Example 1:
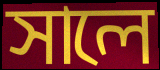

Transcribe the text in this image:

সালে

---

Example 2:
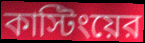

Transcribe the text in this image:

কাস্টিংয়ের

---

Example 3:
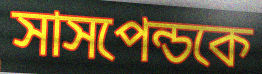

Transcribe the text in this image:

সাসপেন্ডকে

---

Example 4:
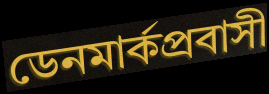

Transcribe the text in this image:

ডেনমার্কপ্রবাসী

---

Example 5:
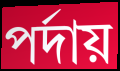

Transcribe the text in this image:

পর্দায়